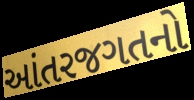
આંતરજગતનો